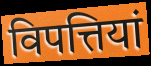
विपत्तियां